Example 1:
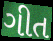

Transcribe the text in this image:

ગીત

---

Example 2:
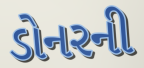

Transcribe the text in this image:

ડોનરની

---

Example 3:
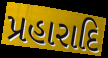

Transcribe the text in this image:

પ્રહારાદિ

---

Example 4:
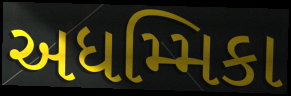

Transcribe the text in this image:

અધમ્મિકા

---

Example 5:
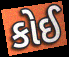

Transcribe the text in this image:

કોઈ